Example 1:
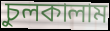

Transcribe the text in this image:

চুলকালাম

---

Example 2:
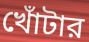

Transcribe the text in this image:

খোঁটার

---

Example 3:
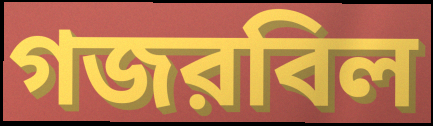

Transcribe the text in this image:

গজরবিল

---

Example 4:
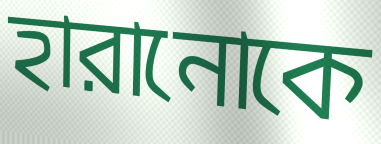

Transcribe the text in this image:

হারানোকে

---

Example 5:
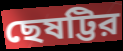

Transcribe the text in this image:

ছেষট্টির